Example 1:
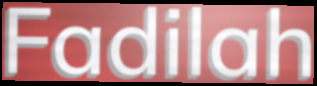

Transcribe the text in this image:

Fadilah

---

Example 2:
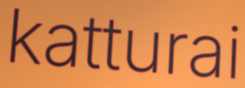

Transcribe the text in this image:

katturai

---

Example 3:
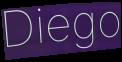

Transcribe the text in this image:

Diego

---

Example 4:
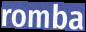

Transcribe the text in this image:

romba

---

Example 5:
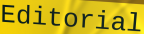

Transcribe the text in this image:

Editorial